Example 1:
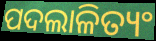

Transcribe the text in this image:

ପଦଲାଳିତ୍ୟଂ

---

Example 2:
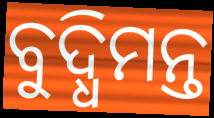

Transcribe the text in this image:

ବୁଦ୍ଧିମନ୍ତ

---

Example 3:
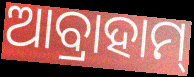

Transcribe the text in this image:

ଆବ୍ରାହାମ୍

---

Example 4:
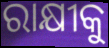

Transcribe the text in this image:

ରାକ୍ଷୀକୁ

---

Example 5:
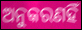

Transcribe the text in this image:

ଅନୁକରଣହିଁ